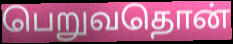
பெறுவதொன்